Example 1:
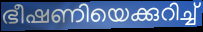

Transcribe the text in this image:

ഭീഷണിയെക്കുറിച്ച്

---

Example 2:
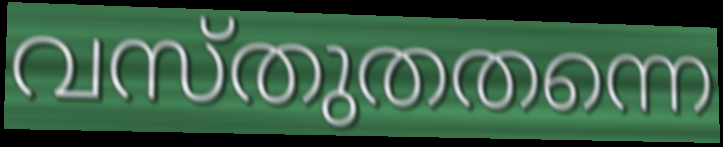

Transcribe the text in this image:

വസ്തുതതന്നെ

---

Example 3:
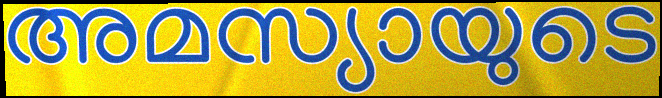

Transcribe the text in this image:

അമസ്യായുടെ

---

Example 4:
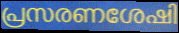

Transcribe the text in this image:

പ്രസരണശേഷി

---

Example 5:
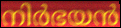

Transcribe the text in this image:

നിർഭയൻ